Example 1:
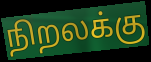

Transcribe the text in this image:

நிறலக்கு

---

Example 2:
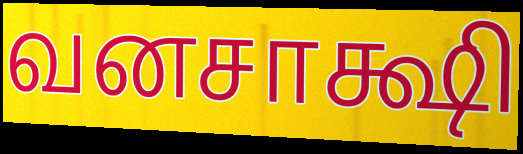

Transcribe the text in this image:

வனசாக்ஷி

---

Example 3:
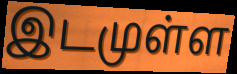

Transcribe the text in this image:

இடமுள்ள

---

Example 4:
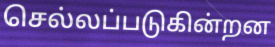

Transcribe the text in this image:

செல்லப்படுகின்றன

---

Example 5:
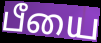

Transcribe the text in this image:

பீயை